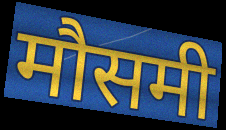
मौसमी